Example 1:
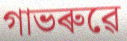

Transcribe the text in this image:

গাভৰুৱে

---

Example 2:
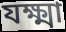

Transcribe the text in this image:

যক্ষ্মা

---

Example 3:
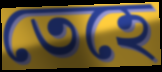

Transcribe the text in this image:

তেহে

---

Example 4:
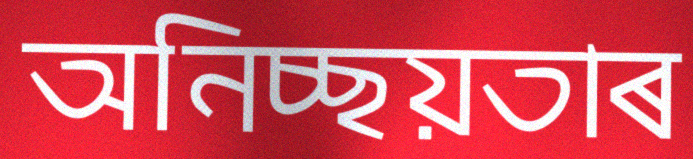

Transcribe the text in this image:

অনিচ্ছয়তাৰ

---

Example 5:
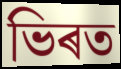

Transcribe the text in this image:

ভিৰত